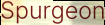
Spurgeon